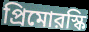
প্রিমোরস্কি